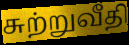
சுற்றுவீதி